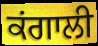
ਕਂਗਾਲੀ